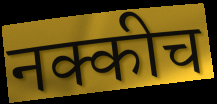
नक्‍कीच